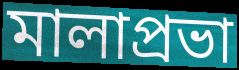
মালাপ্রভা